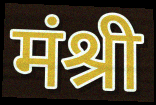
मंश्री